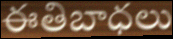
ఈతిబాధలు